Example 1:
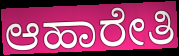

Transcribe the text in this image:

ಆಹಾರೇತಿ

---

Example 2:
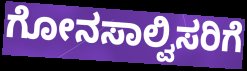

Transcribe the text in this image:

ಗೋನಸಾಲ್ವಿಸರಿಗೆ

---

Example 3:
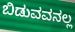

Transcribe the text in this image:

ಬಿಡುವವನಲ್ಲ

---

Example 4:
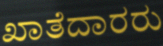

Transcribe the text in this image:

ಖಾತೆದಾರರು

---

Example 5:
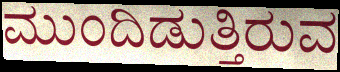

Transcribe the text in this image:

ಮುಂದಿಡುತ್ತಿರುವ